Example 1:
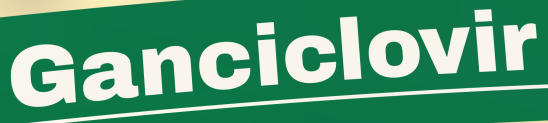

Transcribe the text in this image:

Ganciclovir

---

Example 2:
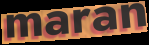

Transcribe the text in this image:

maran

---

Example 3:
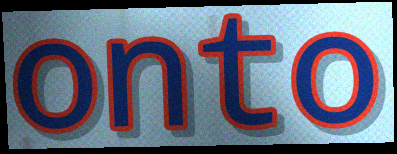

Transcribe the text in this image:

onto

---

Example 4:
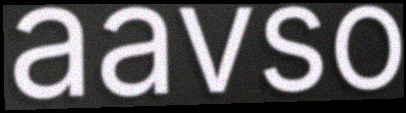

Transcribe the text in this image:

aavso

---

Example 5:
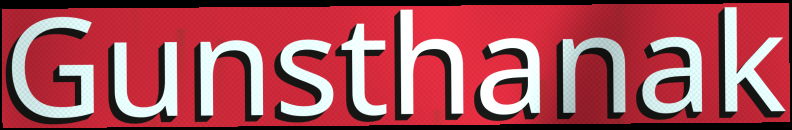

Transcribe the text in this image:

Gunsthanak